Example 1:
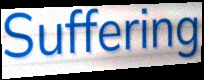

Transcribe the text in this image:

Suffering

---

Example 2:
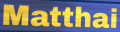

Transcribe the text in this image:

Matthai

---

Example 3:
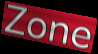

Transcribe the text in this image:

Zone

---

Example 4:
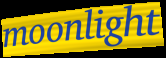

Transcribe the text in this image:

moonlight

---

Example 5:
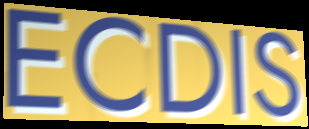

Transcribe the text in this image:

ECDIS